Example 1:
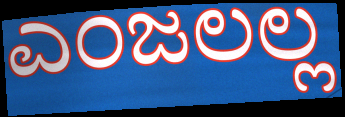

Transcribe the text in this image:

ಎಂಜಲಲ್ಲ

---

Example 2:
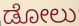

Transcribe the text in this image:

ಡೋಲು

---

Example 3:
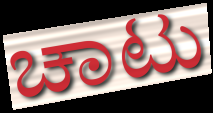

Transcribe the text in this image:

ಚಾಟು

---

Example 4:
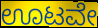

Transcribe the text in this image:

ಊಟವೇ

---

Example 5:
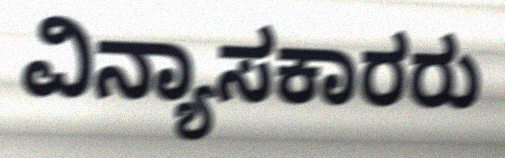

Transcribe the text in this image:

ವಿನ್ಯಾಸಕಾರರು